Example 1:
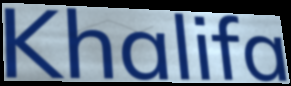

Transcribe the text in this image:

Khalifa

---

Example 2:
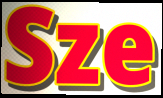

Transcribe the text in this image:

Sze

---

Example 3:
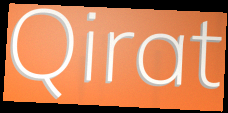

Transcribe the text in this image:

Qirat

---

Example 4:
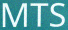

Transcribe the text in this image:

MTS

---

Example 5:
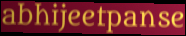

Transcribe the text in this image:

abhijeetpanse